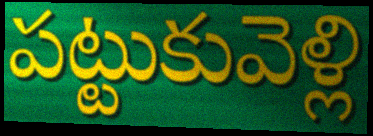
పట్టుకువెళ్లి